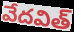
వేదవిత్